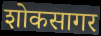
शोकसागर